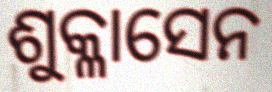
ଶୁକ୍ଳାସେନ